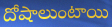
దోషాలుంటాయి